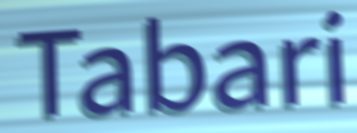
Tabari